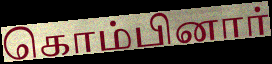
கொம்பினார்